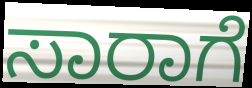
ಸಾರಾಗೆ